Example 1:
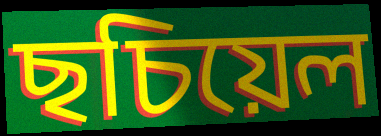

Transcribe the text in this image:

ছচিয়েল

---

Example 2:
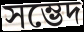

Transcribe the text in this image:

সম্ভেদ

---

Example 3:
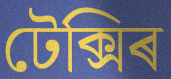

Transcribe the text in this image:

টেক্সিৰ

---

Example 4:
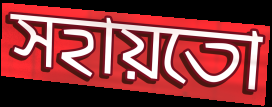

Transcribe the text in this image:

সহায়তো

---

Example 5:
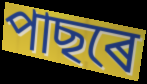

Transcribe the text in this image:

পাছৰে